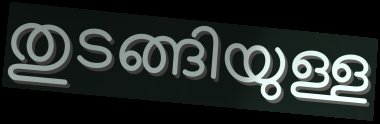
തുടങ്ങിയുള്ള